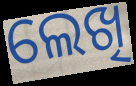
ଲେଖି